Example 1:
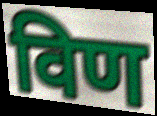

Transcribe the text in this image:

विण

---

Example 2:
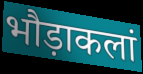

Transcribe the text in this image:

भौड़ाकलां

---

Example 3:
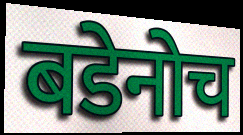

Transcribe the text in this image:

बडेनोच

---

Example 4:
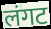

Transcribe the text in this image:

लंगट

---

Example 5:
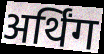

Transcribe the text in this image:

अर्थिंग